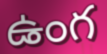
ఉంగ